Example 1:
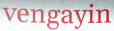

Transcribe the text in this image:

vengayin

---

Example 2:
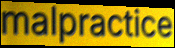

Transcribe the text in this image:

malpractice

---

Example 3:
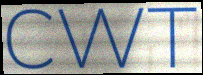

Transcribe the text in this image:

CWT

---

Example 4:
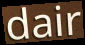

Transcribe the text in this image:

dair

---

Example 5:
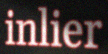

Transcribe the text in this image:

inlier